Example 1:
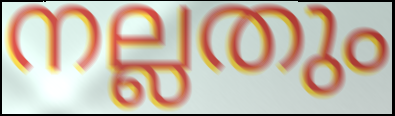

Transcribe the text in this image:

നല്ലതും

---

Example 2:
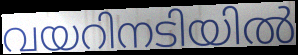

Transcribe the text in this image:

വയറിനടിയിൽ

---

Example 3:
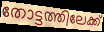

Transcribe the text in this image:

തോട്ടത്തിലേക്ക്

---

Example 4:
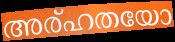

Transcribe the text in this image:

അര്ഹതയോ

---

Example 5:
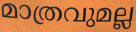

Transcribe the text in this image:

മാത്രവുമല്ല